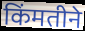
किंमतीने